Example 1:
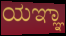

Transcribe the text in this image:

ಯಞ್ಞಾ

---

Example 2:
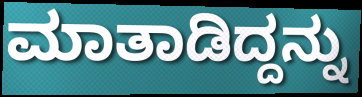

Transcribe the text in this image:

ಮಾತಾಡಿದ್ದನ್ನು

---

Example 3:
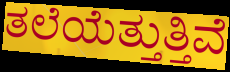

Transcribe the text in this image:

ತಲೆಯೆತ್ತುತ್ತಿವೆ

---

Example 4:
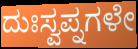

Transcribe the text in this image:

ದುಃಸ್ವಪ್ನಗಳೇ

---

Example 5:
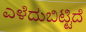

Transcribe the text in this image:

ಎಳೆದುಬಿಟ್ಟಿದೆ